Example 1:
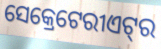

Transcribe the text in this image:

ସେକ୍ରେଟେରୀଏଟ୍‍ର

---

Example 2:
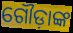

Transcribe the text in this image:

ଗୌଡ଼ାଙ୍କ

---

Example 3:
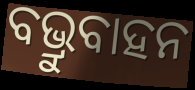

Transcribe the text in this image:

ବଭ୍ରୁବାହନ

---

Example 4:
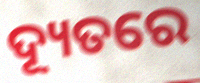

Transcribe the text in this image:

ଦ୍ୟୂତରେ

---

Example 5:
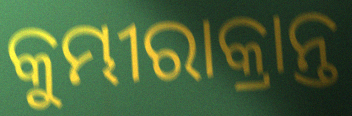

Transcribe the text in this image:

କୁମ୍ଭୀରାକ୍ରାନ୍ତ